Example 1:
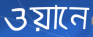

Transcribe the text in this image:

ওয়ানে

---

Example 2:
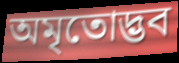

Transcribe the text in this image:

অমৃতোদ্ভব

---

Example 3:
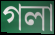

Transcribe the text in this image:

গলা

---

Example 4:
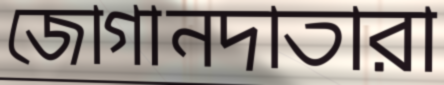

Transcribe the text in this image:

জোগানদাতারা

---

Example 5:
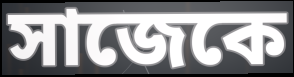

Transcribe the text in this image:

সাজেকে